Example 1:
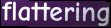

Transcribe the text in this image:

flattering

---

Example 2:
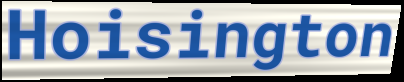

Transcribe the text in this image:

Hoisington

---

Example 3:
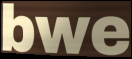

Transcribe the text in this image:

bwe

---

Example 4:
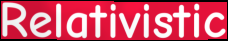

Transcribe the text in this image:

Relativistic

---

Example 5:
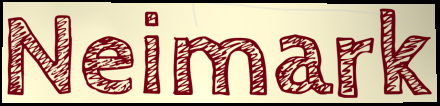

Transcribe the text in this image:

Neimark